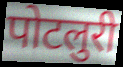
पोटलुरी